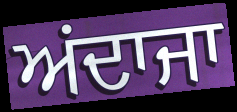
ਅਂਦਾਜਾ